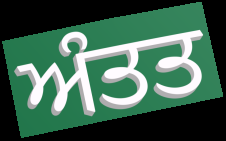
ਅੰਤਤ